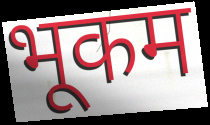
भूकम